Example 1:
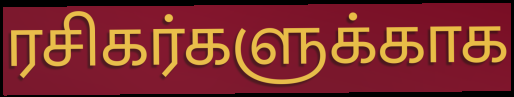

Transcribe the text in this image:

ரசிகர்களுக்காக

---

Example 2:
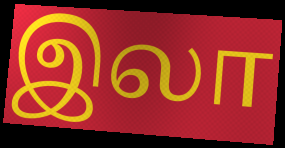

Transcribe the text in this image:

இலா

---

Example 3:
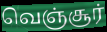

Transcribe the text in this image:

வெஞ்சூர்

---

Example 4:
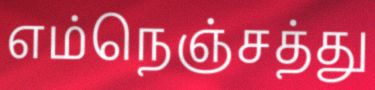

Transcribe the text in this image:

எம்நெஞ்சத்து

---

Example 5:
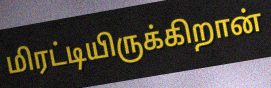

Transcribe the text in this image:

மிரட்டியிருக்கிறான்